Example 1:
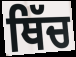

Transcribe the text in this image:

ਥਿੱਚ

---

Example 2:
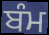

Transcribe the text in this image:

ਬੰਮ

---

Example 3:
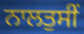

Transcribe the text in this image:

ਨਾਲਤੁਸੀਂ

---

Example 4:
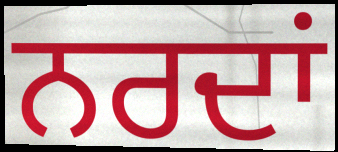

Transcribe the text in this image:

ਨਰਦਾਂ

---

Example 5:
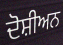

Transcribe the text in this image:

ਦੋਸ਼ੀਅਨ